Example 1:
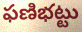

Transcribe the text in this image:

ఫణిభట్టు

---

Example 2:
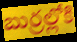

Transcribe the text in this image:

బుర్రల్లోకి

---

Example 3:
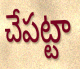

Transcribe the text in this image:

చేపట్టా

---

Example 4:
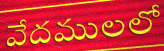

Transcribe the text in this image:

వేదములలో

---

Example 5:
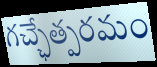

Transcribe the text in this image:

గచ్ఛేత్పరమం